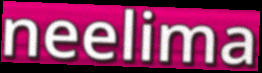
neelima